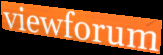
viewforum